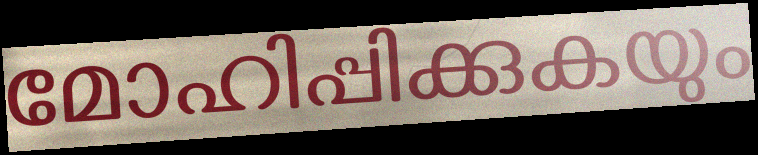
മോഹിപ്പിക്കുകയും